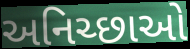
અનિચ્છાઓ